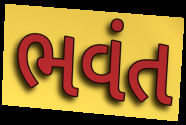
ભવંત